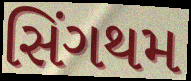
સિંગથમ